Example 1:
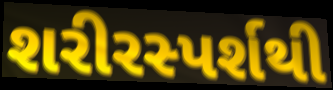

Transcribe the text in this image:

શરીરસ્પર્શથી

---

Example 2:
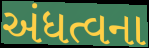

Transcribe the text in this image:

અંધત્વના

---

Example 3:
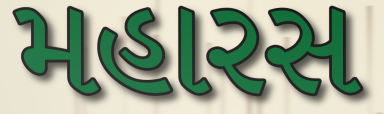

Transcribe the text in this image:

મહારસ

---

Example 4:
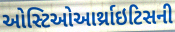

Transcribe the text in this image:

ઓસ્ટિઓઆર્થ્રાઇટિસની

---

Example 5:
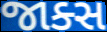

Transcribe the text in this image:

જાક્સ